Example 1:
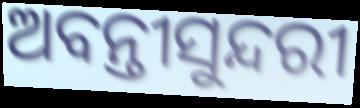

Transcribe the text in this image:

ଅବନ୍ତୀସୁନ୍ଦରୀ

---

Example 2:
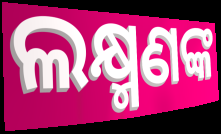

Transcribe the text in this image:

ଲକ୍ଷ୍ମଣଙ୍କ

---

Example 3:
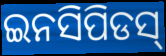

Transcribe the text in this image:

ଇନସିପିଡସ୍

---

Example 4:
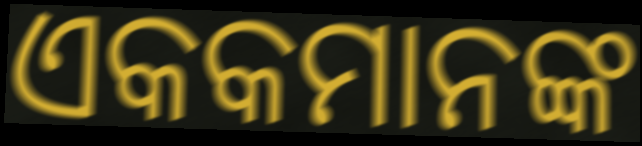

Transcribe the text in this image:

ଏକକମାନଙ୍କ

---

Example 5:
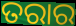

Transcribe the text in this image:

ତରାର